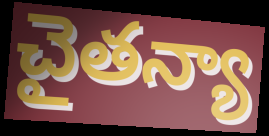
చైతన్యా